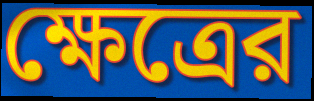
ক্ষেত্রের